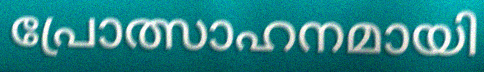
പ്രോത്സാഹനമായി